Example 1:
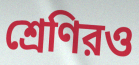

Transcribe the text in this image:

শ্রেণিরও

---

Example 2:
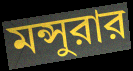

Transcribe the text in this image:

মন্সুরার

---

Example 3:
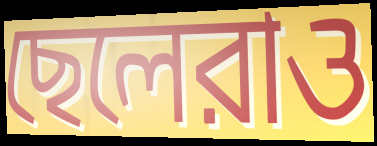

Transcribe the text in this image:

ছেলেরাও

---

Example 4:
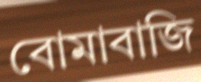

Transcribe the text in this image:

বোমাবাজি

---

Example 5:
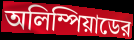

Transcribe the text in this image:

অলিম্পিয়াডের